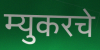
म्युकरचे